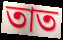
তাত